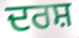
ਦਰਸ਼